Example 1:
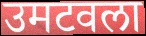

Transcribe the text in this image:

उमटवला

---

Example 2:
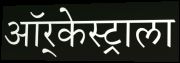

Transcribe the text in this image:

ऑर्केस्ट्राला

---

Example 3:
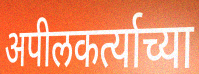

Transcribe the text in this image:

अपीलकर्त्याच्या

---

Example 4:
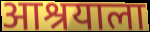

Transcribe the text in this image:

आश्रयाला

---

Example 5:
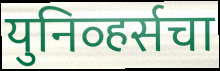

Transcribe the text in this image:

युनिव्हर्सचा